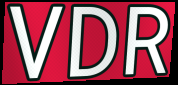
VDR